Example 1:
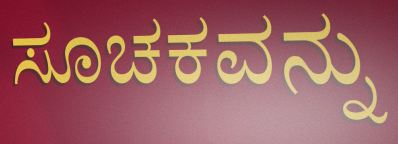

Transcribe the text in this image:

ಸೂಚಕವನ್ನು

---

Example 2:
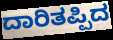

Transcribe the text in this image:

ದಾರಿತಪ್ಪಿದ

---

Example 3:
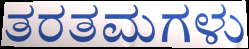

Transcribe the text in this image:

ತರತಮಗಳು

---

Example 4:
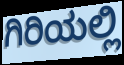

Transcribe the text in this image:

ಗಿರಿಯಲ್ಲಿ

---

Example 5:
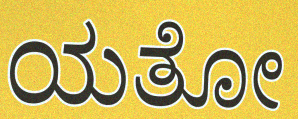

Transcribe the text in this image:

ಯತೋ